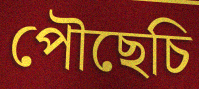
পৌছেচি